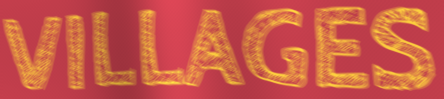
VILLAGES